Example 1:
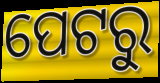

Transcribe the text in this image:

ପେଟରୁ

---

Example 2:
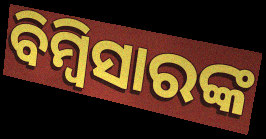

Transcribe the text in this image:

ବିମ୍ବିସାରଙ୍କ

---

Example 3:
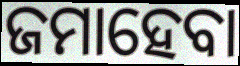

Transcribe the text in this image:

ଜମାହେବା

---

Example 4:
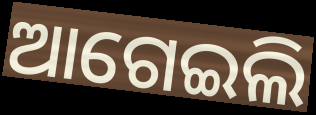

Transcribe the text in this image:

ଆଗେଇଲି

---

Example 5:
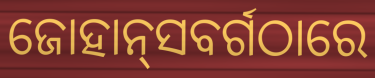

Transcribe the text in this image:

ଜୋହାନ୍‌ସବର୍ଗଠାରେ